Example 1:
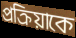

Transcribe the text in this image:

প্রক্রিয়াকে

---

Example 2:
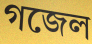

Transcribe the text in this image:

গজেল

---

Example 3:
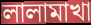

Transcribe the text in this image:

লালামাখা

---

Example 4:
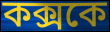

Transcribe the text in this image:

কক্সকে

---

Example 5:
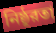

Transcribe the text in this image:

নিষ্ঠূরতা